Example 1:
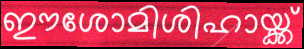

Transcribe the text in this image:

ഈശോമിശിഹായ്ക്ക്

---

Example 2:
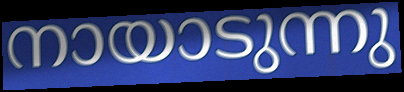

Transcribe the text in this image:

നായാടുന്നു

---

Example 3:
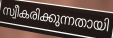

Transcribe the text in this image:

സ്വീകരിക്കുന്നതായി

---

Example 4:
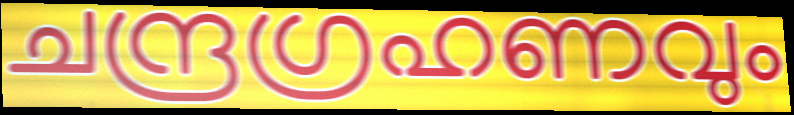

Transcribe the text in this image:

ചന്ദ്രഗ്രഹണവും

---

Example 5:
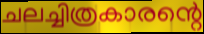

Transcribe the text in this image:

ചലച്ചിത്രകാരന്റെ